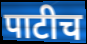
पाटीच